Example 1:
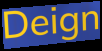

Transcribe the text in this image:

Deign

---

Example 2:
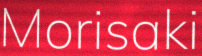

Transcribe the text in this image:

Morisaki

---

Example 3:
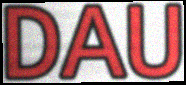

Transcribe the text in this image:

DAU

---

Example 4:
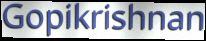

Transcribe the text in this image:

Gopikrishnan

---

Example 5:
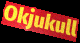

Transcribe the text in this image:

Okjukull